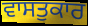
ਵਾਸਤੁਕਾਰ